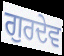
ਗੁਰਦੇਵ